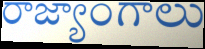
రాజ్యాంగాలు